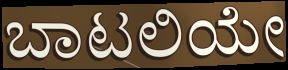
ಬಾಟಲಿಯೇ